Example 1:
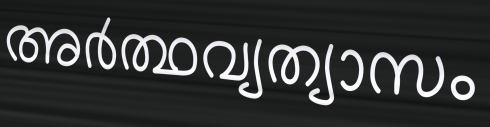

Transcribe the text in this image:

അർത്ഥവ്യത്യാസം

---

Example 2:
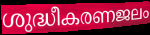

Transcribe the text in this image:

ശുദ്ധീകരണജലം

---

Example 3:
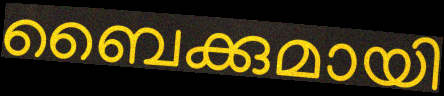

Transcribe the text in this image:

ബൈക്കുമായി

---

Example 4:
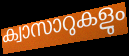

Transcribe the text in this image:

ക്വാസാറുകളും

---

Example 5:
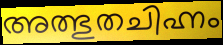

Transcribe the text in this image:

അത്ഭുതചിഹ്നം